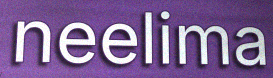
neelima